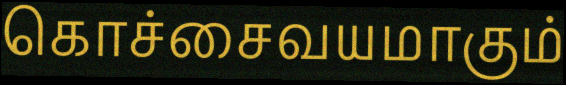
கொச்சைவயமாகும்